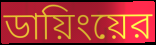
ডায়িংয়ের